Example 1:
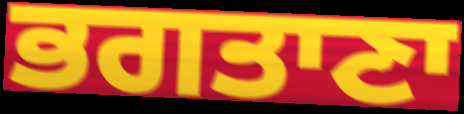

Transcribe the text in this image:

ਭਗਤਾਣਾ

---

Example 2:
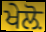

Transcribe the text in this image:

ਖੇਲ਼ੋ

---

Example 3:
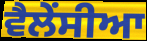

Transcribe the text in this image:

ਵੈਲੇਂਸੀਆ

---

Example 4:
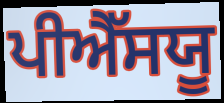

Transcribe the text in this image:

ਪੀਐੱਸਯੂ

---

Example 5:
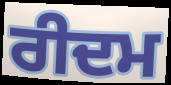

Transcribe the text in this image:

ਰੀਦਮ